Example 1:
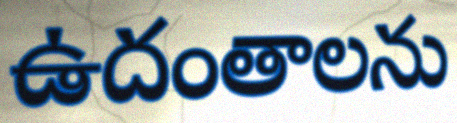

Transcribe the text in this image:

ఉదంతాలను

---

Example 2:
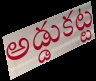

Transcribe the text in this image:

అడ్డుకట్ట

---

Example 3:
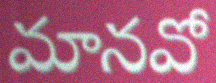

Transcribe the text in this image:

మానవో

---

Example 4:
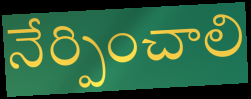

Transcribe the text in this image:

నేర్పించాలి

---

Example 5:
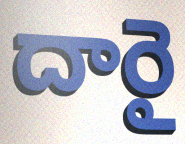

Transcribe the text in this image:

దారై